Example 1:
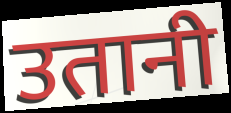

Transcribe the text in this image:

उतानी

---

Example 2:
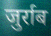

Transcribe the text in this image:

जुर्राब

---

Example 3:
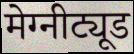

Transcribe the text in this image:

मेग्नीट्यूड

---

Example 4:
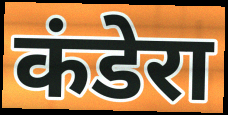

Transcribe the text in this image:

कंडेरा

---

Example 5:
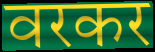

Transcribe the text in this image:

वरकर